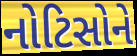
નોટિસોને